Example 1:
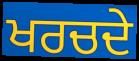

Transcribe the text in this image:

ਖਰਚਦੇ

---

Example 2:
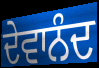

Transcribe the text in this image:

ਦੇਵਾਨੰਦ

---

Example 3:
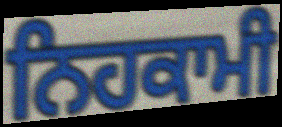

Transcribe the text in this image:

ਨਿਹਕਾਮੀ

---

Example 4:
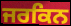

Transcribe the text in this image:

ਜਰਕਿਨ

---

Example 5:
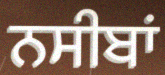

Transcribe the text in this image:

ਨਸੀਬਾਂ